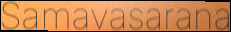
Samavasarana